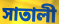
সাতালী